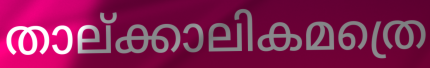
താല്ക്കാലികമത്രെ